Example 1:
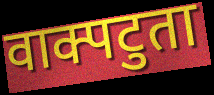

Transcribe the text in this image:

वाक्पटुता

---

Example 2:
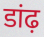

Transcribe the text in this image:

डांढ़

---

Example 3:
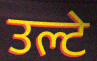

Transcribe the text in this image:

उल्टे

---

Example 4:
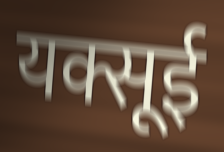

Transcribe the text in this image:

यक्सूई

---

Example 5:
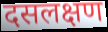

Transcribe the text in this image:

दसलक्षण